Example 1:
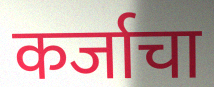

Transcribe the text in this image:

कर्जाचा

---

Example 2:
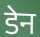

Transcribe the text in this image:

डेन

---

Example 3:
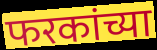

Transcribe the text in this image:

फरकांच्या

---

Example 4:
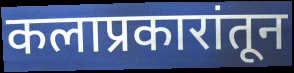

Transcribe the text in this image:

कलाप्रकारांतून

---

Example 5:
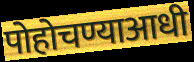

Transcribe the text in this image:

पोहोचण्याआधी